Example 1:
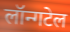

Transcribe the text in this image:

लॉन्गटेल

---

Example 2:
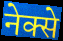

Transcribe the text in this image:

नेक्से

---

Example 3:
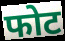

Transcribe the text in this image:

फोट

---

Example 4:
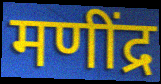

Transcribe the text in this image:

मणींद्र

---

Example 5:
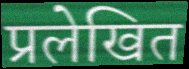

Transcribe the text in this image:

प्रलेखित